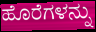
ಹೊರೆಗಳನ್ನು